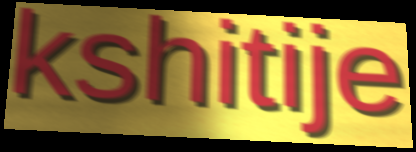
kshitije